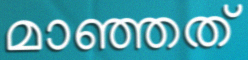
മാഞ്ഞത്